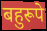
बहुरूपे